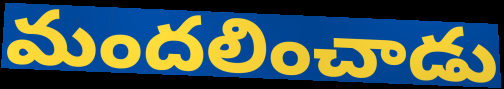
మందలించాడు